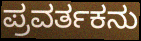
ಪ್ರವರ್ತಕನು